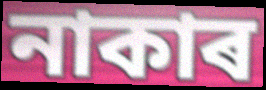
নাকাৰ